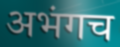
अभंगच